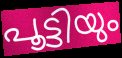
പൂട്ടിയും